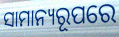
ସାମାନ୍ୟରୂପରେ